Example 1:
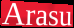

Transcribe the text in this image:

Arasu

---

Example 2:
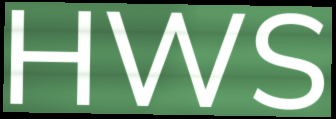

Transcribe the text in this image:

HWS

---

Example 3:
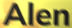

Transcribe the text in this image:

Alen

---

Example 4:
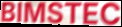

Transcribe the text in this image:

BIMSTEC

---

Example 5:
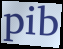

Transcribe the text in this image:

pib